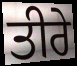
ਤੀਰੇ